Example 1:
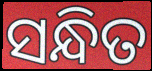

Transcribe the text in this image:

ସନ୍ଧିତ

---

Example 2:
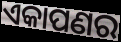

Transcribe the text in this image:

ଏକାପଣର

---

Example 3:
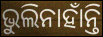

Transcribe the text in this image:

ଭୁଲିନାହାଁନ୍ତି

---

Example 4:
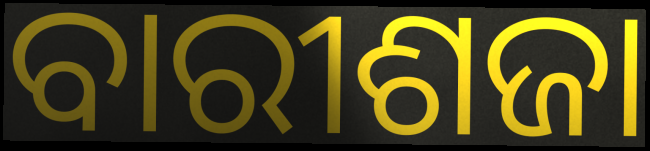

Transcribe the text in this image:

ବାରୀଶଜା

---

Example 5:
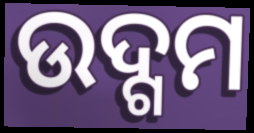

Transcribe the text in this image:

ଉଦ୍ଗମ